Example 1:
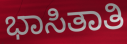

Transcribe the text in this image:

ಭಾಸಿತಾತಿ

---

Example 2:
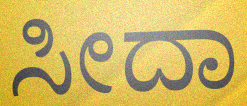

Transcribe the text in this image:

ಸೀದಾ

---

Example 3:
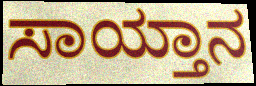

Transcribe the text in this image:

ಸಾಯ್ತಾನ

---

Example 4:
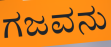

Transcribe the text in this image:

ಗಜವನು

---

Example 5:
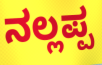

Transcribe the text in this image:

ನಲ್ಲಪ್ಪ